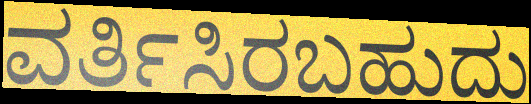
ವರ್ತಿಸಿರಬಹುದು